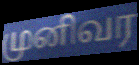
முனிவர